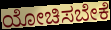
ಯೋಚಿಸಬೇಕೆ